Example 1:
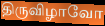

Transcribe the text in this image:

திருவிழாவோ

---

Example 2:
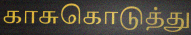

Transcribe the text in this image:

காசுகொடுத்து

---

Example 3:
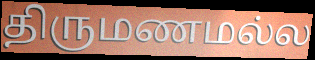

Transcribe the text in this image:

திருமணமல்ல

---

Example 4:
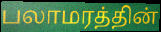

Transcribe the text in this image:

பலாமரத்தின்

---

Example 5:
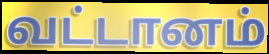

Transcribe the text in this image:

வட்டானம்